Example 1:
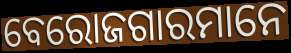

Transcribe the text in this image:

ବେରୋଜଗାରମାନେ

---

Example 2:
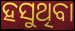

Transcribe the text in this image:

ହସୁଥିବା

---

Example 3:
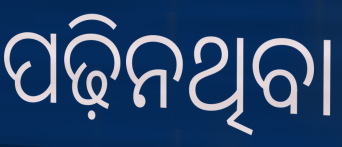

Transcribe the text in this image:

ପଢ଼ିନଥିବା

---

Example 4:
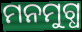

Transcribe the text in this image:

ମନମୁଗ୍ଧ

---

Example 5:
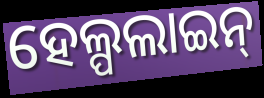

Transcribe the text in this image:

ହେଲ୍ପଲାଇନ୍